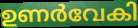
ഉണർവേകി